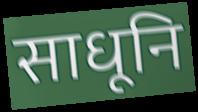
साधूनि